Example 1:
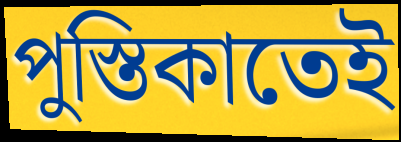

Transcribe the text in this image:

পুস্তিকাতেই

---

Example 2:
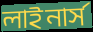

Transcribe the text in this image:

লাইনার্স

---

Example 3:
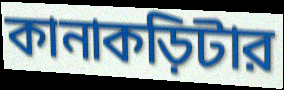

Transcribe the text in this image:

কানাকড়িটার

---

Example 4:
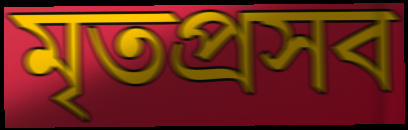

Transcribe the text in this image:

মৃতপ্রসব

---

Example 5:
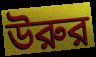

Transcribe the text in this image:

উরুর